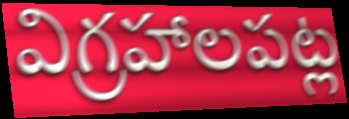
విగ్రహాలపట్ల